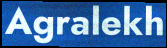
Agralekh